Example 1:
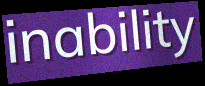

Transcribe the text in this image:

inability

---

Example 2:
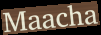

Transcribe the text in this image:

Maacha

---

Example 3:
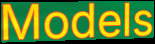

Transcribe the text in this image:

Models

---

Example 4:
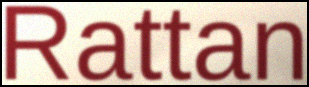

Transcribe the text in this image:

Rattan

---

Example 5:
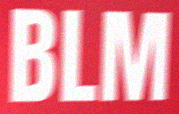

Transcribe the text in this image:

BLM